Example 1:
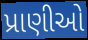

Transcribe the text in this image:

પ્રાણીઓ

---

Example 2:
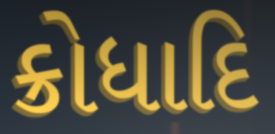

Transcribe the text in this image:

ક્રોધાદિ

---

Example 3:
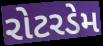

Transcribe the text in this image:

રોટરડેમ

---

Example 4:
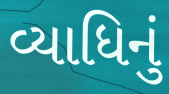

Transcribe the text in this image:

વ્યાધિનું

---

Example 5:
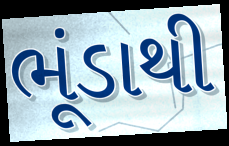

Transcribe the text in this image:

ભૂંડાથી